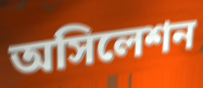
অসিলেশন